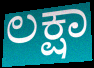
ಲಕ್ಷಾ